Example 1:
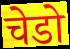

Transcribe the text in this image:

चेडो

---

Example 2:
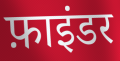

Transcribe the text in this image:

फ़ाइंडर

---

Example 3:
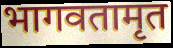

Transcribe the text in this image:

भागवतामृत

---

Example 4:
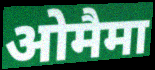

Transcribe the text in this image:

ओमैमा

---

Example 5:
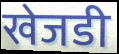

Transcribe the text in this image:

खेजडी